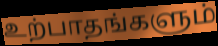
உற்பாதங்களும்